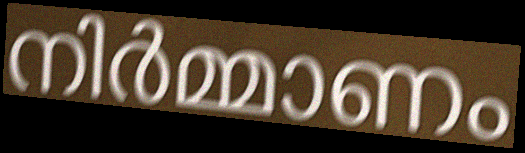
നിർമ്മാണം